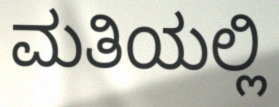
ಮತಿಯಲ್ಲಿ